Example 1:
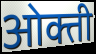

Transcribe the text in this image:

ओक्ती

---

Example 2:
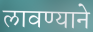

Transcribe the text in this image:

लावण्याने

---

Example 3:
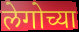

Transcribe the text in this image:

लेगोच्या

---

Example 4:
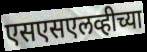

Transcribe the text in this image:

एसएसएलव्हीच्या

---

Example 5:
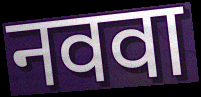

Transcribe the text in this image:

नववा